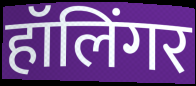
हॉलिंगर